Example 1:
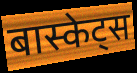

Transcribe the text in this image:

बास्केट्स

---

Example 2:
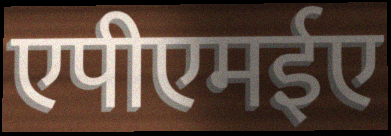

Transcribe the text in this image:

एपीएमईए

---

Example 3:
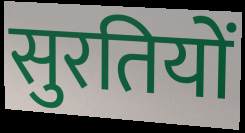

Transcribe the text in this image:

सुरतियों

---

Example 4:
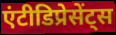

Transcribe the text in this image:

एंटीडिप्रेसेंट्स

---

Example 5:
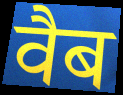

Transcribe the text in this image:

वैब